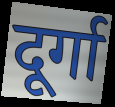
दूर्गा